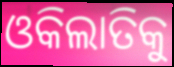
ଓକିଲାତିକୁ